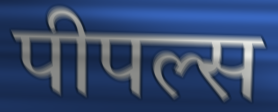
पीपल्स